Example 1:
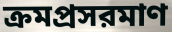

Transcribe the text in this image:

ক্রমপ্রসরমাণ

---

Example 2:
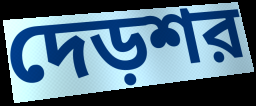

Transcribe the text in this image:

দেড়শর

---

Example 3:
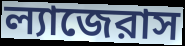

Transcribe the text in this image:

ল্যাজেরাস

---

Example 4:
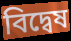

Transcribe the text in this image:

বিদ্বেষ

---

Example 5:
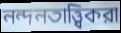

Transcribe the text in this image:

নন্দনতাত্ত্বিকরা